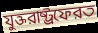
যুক্তরাষ্ট্রফেরত